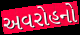
અવરોહનો